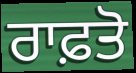
ਰਾਫ਼ਤੋ